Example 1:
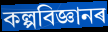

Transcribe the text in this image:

কল্পবিজ্ঞানৰ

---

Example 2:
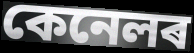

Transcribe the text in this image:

কেনেলৰ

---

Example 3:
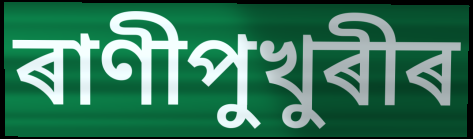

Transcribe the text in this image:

ৰাণীপুখুৰীৰ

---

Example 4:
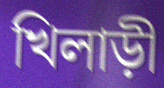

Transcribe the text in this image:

খিলাড়ী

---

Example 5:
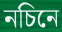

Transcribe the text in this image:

নচিনে